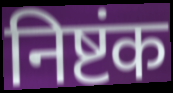
निष्टंक